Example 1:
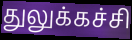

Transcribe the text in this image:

துலுக்கச்சி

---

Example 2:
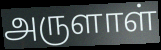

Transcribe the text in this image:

அருளாள்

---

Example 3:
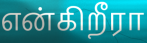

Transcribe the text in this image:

என்கிறீரா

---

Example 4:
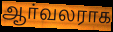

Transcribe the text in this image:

ஆர்வலராக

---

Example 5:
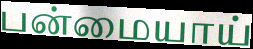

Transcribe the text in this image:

பன்மையாய்